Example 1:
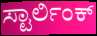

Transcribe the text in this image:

ಸ್ಟಾರ್ಲಿಂಕ್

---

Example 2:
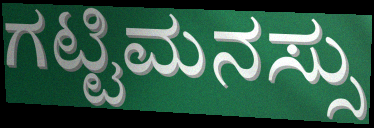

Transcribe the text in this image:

ಗಟ್ಟಿಮನಸ್ಸು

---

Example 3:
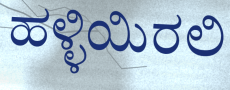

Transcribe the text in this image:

ಹಳ್ಳಿಯಿರಲಿ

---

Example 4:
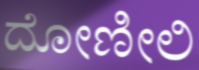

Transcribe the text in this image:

ದೋಣೀಲಿ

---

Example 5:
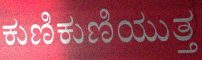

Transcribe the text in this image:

ಕುಣಿಕುಣಿಯುತ್ತ